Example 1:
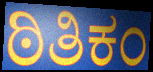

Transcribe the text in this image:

ಠಿತಿಕಂ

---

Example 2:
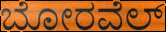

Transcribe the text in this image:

ಬೋರವೆಲ್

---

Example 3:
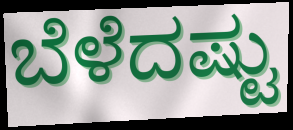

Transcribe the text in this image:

ಬೆಳೆದಷ್ಟು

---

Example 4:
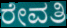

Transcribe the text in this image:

ರೇವತಿ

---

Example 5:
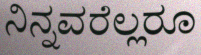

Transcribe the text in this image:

ನಿನ್ನವರೆಲ್ಲರೂ